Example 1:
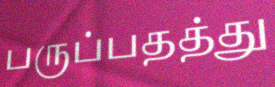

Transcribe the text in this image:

பருப்பதத்து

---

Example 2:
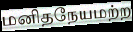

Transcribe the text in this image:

மனிதநேயமற்ற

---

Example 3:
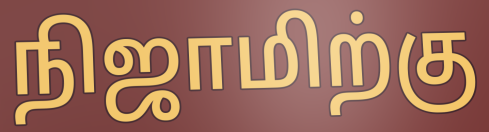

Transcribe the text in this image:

நிஜாமிற்கு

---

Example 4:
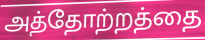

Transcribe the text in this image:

அத்தோற்றத்தை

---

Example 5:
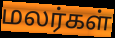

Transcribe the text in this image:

மலர்கள்